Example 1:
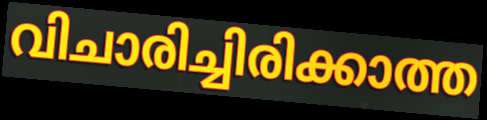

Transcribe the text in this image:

വിചാരിച്ചിരിക്കാത്ത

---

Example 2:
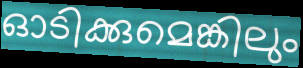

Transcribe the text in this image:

ഓടിക്കുമെങ്കിലും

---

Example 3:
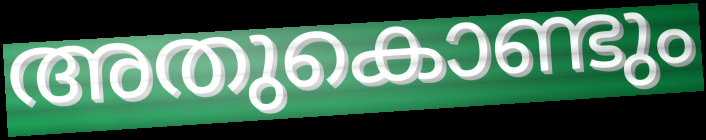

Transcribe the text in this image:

അതുകൊണ്ടും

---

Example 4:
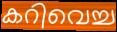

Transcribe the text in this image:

കറിവെച്ച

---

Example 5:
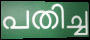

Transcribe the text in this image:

പതിച്ച